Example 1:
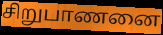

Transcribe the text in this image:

சிறுபாணனை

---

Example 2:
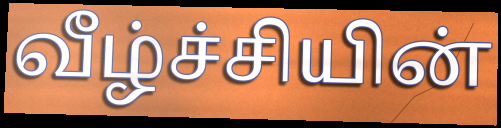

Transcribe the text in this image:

வீழ்ச்சியின்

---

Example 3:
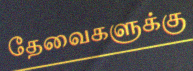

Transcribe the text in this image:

தேவைகளுக்கு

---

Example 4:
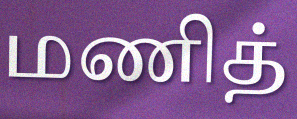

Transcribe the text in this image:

மணித்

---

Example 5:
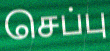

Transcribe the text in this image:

செப்பு